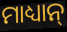
ମାଧ୍ୟାନ୍